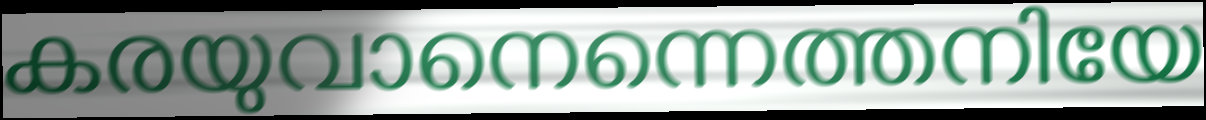
കരയുവാനെന്നെത്തനിയേ